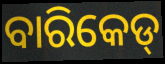
ବାରିକେଡ୍